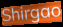
Shirgao